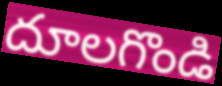
దూలగొండి